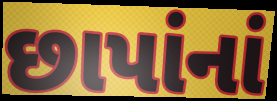
છાપાંનાં